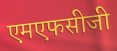
एमएफसीजी